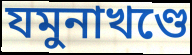
যমুনাখণ্ডে